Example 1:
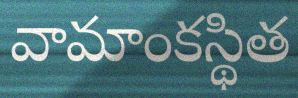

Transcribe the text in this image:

వామాంకస్థిత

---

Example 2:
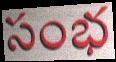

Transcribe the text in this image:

సంభ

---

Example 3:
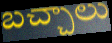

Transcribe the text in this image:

బచ్చాలు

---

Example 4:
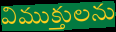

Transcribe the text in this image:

విముక్తులను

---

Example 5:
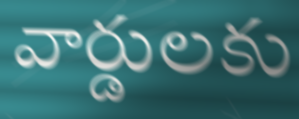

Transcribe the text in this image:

వార్డులకు